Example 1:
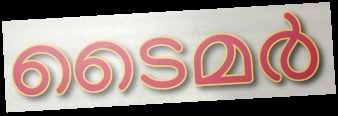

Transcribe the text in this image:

ടൈമർ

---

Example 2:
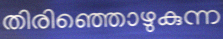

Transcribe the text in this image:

തിരിഞ്ഞൊഴുകുന്ന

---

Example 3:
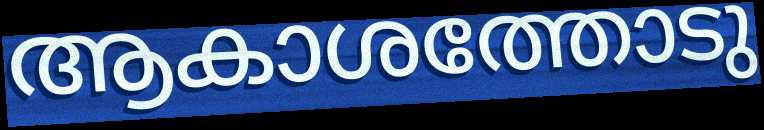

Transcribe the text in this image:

ആകാശത്തോടു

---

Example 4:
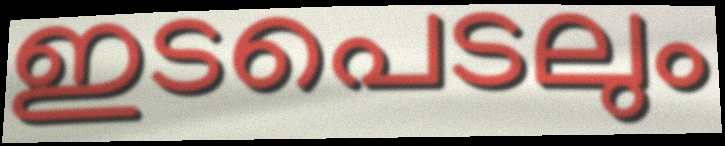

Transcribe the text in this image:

ഇടപെടലും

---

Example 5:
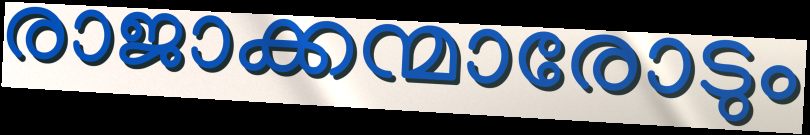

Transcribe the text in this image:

രാജാക്കന്മാരോടും